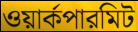
ওয়ার্কপারমিট